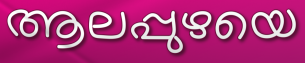
ആലപ്പുഴയെ